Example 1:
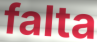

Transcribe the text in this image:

falta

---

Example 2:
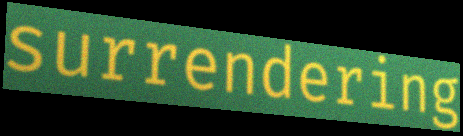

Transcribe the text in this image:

surrendering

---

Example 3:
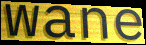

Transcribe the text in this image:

wane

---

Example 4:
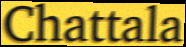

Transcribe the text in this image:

Chattala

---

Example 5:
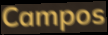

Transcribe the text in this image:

Campos